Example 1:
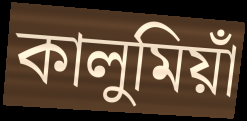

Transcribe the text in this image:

কালুমিয়াঁ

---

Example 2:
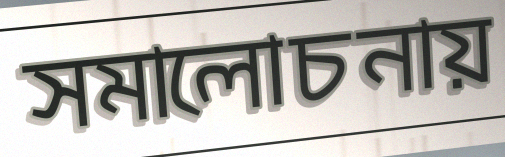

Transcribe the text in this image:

সমালোচনায়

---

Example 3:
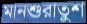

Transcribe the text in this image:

মানশুরাতুশ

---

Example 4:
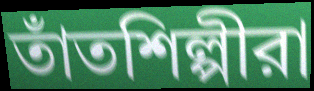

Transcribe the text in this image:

তাঁতশিল্পীরা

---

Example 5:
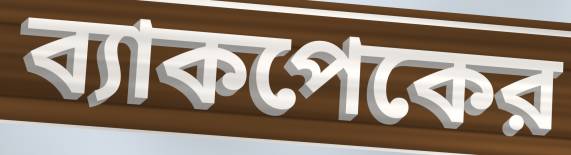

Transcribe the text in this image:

ব্যাকপেকের